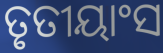
ତୃତୀୟାଂସ